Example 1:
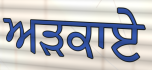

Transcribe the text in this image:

ਅੜਕਾਏ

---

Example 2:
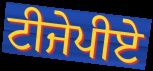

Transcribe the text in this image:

ਟੀਜੇਪੀਏ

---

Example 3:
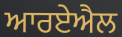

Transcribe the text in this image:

ਆਰਏਐਲ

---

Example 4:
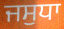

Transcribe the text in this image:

ਜਸੁਧਾ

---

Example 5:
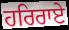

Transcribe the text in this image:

ਹਰਿਰਾਏ